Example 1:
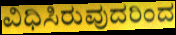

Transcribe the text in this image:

ವಿಧಿಸಿರುವುದರಿಂದ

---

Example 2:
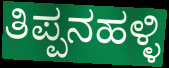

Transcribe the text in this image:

ತಿಪ್ಪನಹಳ್ಳಿ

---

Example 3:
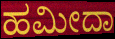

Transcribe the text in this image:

ಹಮೀದಾ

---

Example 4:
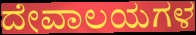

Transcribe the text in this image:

ದೇವಾಲಯಗಳ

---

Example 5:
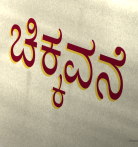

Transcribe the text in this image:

ಚಿಕ್ಕವನೆ